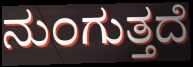
ನುಂಗುತ್ತದೆ